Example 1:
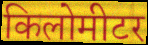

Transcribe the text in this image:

किलोमीटर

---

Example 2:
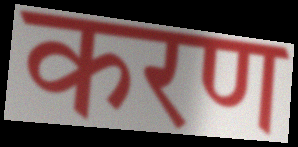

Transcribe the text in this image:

करण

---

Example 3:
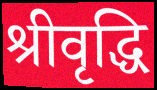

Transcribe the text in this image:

श्रीवृद्धि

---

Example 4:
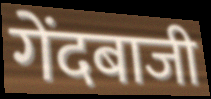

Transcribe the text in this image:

गेंदबाजी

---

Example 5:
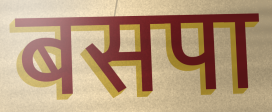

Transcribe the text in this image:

बसपा